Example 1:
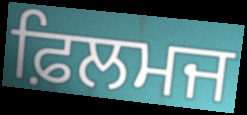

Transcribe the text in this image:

ਫ਼ਿਲਮਜ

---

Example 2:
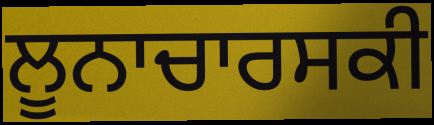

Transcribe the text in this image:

ਲੂਨਾਚਾਰਸਕੀ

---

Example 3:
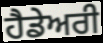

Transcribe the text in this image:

ਹੈਡੇਅਰੀ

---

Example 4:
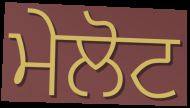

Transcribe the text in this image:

ਮੇਲੋਟ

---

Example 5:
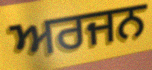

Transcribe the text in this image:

ਅਰਜਨ